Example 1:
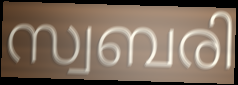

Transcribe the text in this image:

സ്വബരി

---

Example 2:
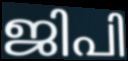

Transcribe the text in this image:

ജിപി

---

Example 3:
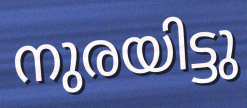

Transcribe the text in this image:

നുരയിട്ടു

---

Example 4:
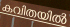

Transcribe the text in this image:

കവിതയിൽ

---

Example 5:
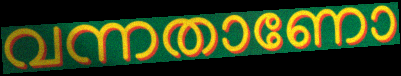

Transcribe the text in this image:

വന്നതാണോ